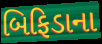
બિફિડાના